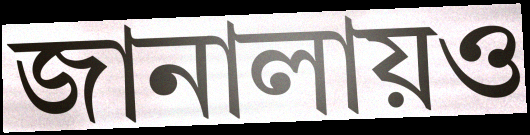
জানালায়ও